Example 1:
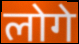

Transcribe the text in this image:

लोगे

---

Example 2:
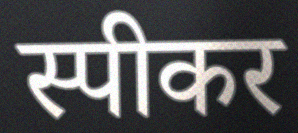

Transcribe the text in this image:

स्पीकर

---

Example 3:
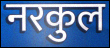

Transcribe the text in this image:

नरकुल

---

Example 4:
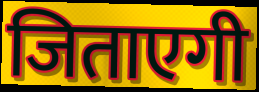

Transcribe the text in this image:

जिताएगी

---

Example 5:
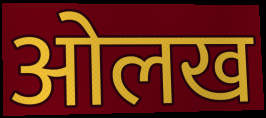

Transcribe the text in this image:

ओलख